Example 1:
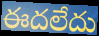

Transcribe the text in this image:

ఈదలేదు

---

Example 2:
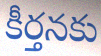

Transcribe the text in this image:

కీర్తనకు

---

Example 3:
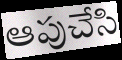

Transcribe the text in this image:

ఆపుచేసి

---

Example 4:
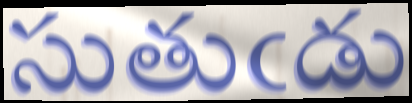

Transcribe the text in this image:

సుతుఁడు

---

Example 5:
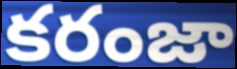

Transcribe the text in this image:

కరంజా